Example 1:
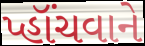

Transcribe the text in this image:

પ્હૉંચવાને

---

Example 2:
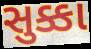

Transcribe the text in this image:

સુક્કા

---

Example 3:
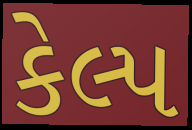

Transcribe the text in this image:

કેલ્પ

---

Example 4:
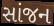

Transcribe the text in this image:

સાંજન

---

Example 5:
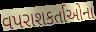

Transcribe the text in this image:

વપરાશકર્તાઓના